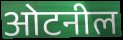
ओटनील